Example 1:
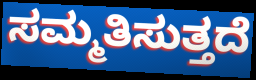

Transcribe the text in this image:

ಸಮ್ಮತಿಸುತ್ತದೆ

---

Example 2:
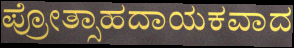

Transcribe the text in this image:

ಪ್ರೋತ್ಸಾಹದಾಯಕವಾದ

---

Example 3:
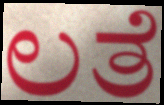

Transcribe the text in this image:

ಲತೆ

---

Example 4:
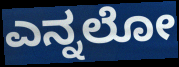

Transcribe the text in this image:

ಎನ್ನಲೋ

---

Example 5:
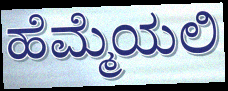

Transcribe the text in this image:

ಹೆಮ್ಮೆಯಲಿ